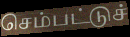
செம்பட்டுச்